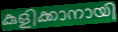
കുളിക്കാനായി